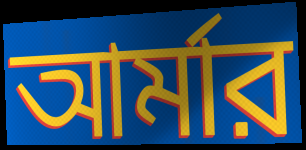
আর্মার